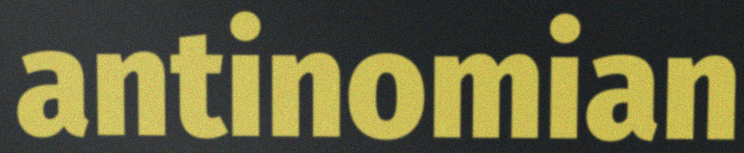
antinomian